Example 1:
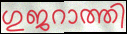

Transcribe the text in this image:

ഗുജറാത്തി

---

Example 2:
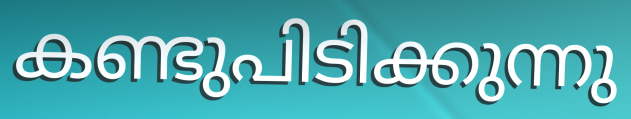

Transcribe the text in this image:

കണ്ടുപിടിക്കുന്നു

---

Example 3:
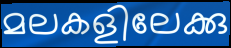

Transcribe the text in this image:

മലകളിലേക്കു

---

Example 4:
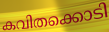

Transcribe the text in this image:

കവിതക്കൊടി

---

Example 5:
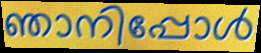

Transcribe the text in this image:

ഞാനിപ്പോൾ